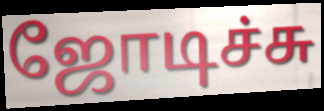
ஜோடிச்சு